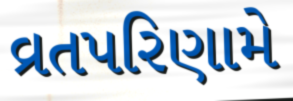
વ્રતપરિણામે